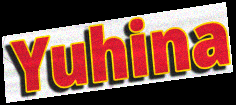
Yuhina